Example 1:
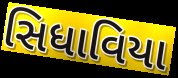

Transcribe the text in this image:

સિધાવિયા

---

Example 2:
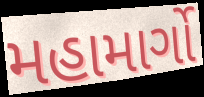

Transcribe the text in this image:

મહામાર્ગો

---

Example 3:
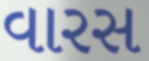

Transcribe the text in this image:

વારસ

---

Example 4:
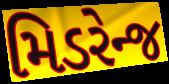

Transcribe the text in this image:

મિડરેન્જ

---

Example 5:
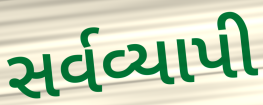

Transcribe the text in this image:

સર્વવ્યાપી